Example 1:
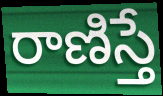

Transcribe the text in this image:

రాణిస్తే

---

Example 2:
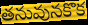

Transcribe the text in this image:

తనువునకొక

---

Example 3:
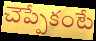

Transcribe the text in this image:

చెప్పేకంటే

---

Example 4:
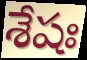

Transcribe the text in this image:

శేషః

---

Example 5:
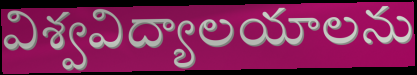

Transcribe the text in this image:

విశ్వవిద్యాలయాలను